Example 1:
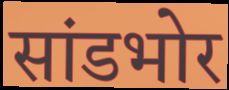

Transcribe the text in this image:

सांडभोर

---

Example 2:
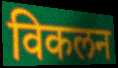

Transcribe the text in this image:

विकलन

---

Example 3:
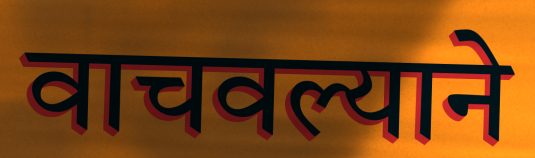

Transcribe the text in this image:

वाचवल्याने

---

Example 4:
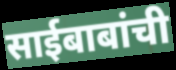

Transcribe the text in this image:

साईबाबांची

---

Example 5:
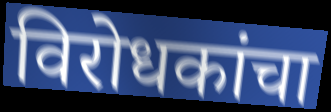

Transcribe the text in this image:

विरोधकांचा